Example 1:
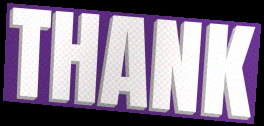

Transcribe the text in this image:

THANK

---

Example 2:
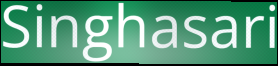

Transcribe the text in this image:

Singhasari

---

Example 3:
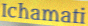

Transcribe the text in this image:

Ichamati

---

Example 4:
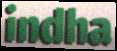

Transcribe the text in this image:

indha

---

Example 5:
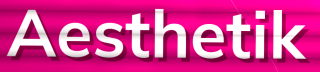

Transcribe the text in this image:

Aesthetik